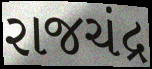
રાજચંદ્ર